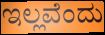
ಇಲ್ಲವೆಂದು